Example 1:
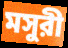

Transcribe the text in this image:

মসুরী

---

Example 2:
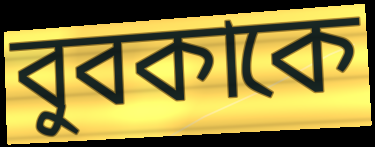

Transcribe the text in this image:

বুবকাকে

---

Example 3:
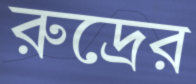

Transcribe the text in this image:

রুদ্রের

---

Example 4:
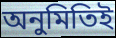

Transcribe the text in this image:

অনুমিতিই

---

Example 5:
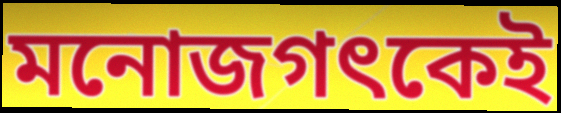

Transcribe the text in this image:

মনোজগৎকেই